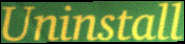
Uninstall